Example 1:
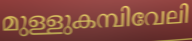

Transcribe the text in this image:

മുള്ളുകമ്പിവേലി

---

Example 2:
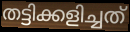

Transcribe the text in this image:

തട്ടിക്കളിച്ചത്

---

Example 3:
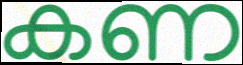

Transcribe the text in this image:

കണ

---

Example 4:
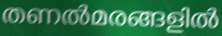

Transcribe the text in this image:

തണൽമരങ്ങളിൽ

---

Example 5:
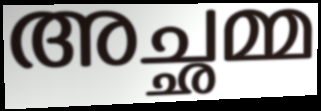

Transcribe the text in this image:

അച്ഛമ്മ